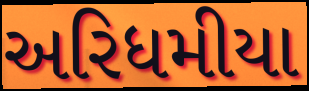
અરિધમીયા